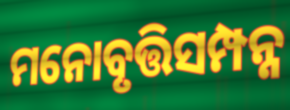
ମନୋବୃତ୍ତିସମ୍ପନ୍ନ